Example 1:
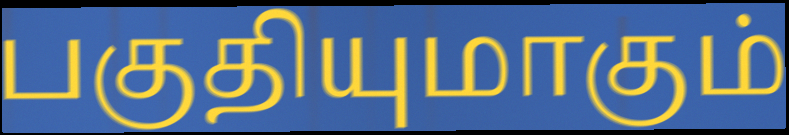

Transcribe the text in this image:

பகுதியுமாகும்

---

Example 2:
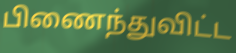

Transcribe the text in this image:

பிணைந்துவிட்ட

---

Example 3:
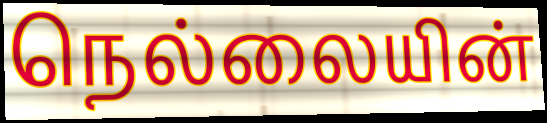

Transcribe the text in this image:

நெல்லையின்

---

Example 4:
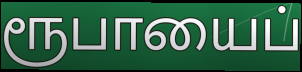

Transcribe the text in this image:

ரூபாயைப்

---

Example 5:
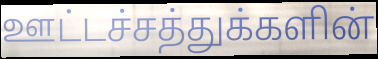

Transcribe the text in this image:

ஊட்டச்சத்துக்களின்